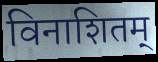
विनाशितम्